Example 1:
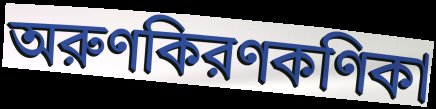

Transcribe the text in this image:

অরুণকিরণকণিকা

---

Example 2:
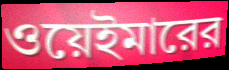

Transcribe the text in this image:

ওয়েইমারের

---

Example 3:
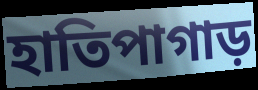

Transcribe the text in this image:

হাতিপাগাড়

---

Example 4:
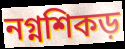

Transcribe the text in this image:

নগ্নশিকড়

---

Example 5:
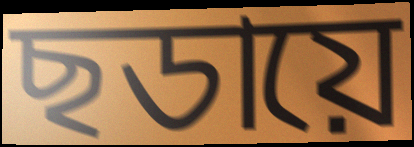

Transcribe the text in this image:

ছডায়ে